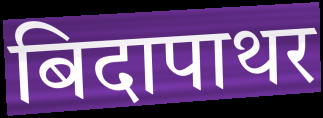
बिदापाथर